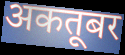
अकतूबर